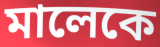
মালেকে